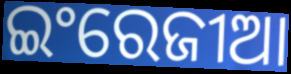
ଇଂରେଜୀଆ